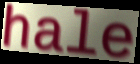
hale